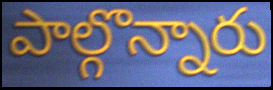
పాల్గొన్నారు